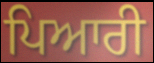
ਪਿਆਰੀ